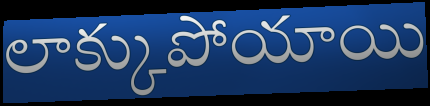
లాక్కుపోయాయి